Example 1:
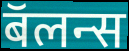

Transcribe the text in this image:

बॅलन्स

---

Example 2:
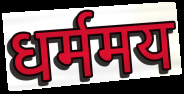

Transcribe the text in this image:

धर्ममय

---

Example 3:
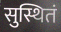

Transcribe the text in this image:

सुस्थितं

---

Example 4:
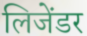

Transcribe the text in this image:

लिजेंडर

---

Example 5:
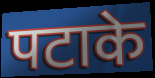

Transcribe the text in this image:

पटाके